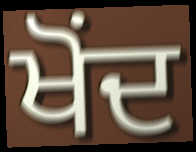
ਖੋਂਦ